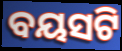
ବୟସଟି